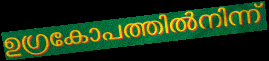
ഉഗ്രകോപത്തിൽനിന്ന്